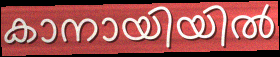
കാനായിയിൽ